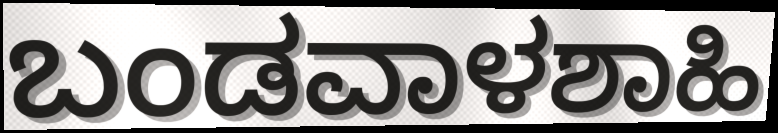
ಬಂಡವಾಳಶಾಹಿ